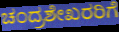
ಚಂದ್ರಶೇಖರರಿಗೆ